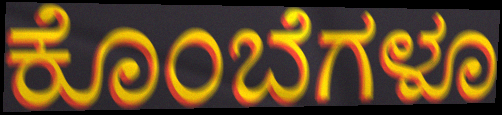
ಕೊಂಬೆಗಳೂ